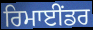
ਰਿਮਾਈਂਡਰ